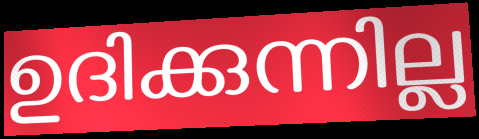
ഉദിക്കുന്നില്ല